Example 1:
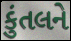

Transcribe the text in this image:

કુંતલને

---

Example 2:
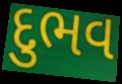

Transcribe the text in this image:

દુભવ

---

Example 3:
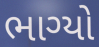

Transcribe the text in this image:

ભાગ્યો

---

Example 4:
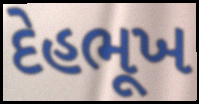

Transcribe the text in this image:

દેહભૂખ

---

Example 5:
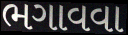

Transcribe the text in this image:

ભગાવવા